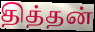
தித்தன்